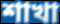
শাখা